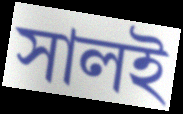
সালই